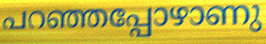
പറഞ്ഞപ്പോഴാണു